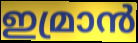
ഇമ്രാൻ